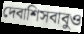
দেবাশিসবাবুও